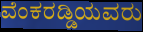
ವೆಂಕರಡ್ಡಿಯವರು